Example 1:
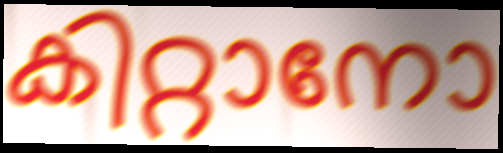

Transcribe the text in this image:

കിറ്റാനോ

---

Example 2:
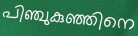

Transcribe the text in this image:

പിഞ്ചുകുഞ്ഞിനെ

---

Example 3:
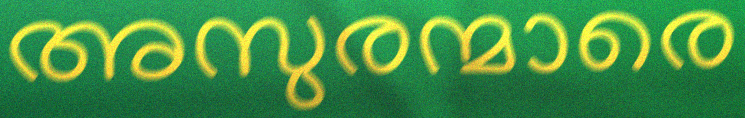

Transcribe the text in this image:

അസുരന്മാരെ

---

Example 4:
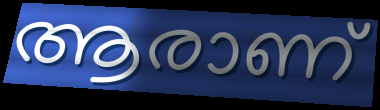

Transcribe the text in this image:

ആരാണ്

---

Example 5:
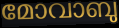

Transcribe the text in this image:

മോവാബു